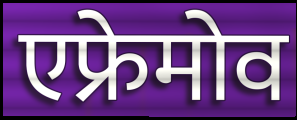
एफ्रेमोव